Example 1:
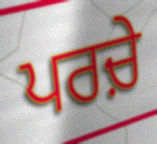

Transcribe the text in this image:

ਪਰਚ਼ੇ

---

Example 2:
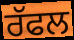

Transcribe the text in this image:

ਰੱਫਲ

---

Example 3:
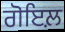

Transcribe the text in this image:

ਗੋਇਲ਼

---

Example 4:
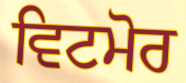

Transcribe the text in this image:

ਵਿਟਮੋਰ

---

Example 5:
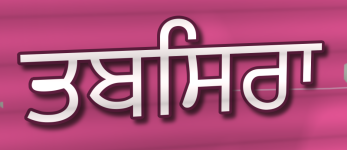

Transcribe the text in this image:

ਤਬਸਿਰਾ